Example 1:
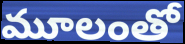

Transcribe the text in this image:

మూలంతో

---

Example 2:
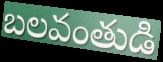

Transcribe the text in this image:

బలవంతుడి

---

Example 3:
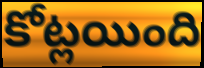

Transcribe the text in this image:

కోట్లయింది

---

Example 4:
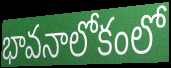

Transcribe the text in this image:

భావనాలోకంలో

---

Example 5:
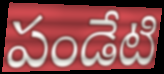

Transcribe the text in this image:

పండేటి